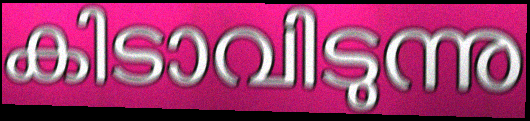
കിടാവിടുന്നു